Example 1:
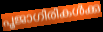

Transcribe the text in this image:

പൂജാഗിരികൾക്കു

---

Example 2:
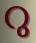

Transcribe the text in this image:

റു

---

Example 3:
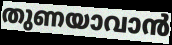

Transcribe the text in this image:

തുണയാവാൻ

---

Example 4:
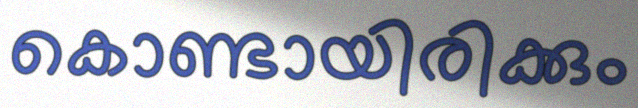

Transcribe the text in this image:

കൊണ്ടായിരിക്കും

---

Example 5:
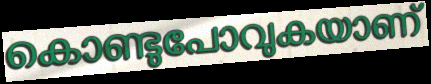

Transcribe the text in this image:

കൊണ്ടുപോവുകയാണ്